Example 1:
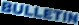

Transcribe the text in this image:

BULLETIN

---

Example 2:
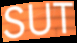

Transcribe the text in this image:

SUT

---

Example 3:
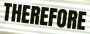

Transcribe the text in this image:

THEREFORE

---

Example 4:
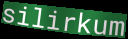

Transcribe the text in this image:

silirkum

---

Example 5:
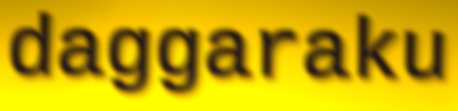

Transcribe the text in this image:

daggaraku